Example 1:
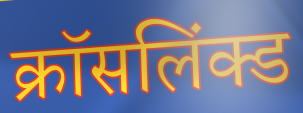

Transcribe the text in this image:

क्रॉसलिंक्ड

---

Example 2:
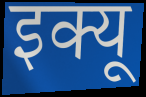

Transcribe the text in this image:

इक्यू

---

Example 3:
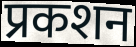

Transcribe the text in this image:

प्रकशन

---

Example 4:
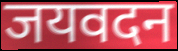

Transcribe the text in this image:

जयवदन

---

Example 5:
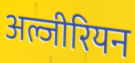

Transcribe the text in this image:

अल्जीरियन